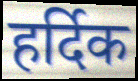
हर्दिक